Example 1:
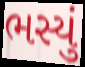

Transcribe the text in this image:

ભસ્યું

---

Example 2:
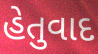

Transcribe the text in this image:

હેતુવાદ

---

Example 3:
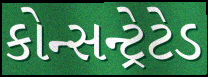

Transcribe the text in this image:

કોન્સન્ટ્રેટેડ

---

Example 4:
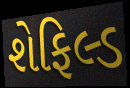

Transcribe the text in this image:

શેફિલ્ડ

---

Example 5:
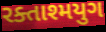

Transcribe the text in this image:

રક્તાશ્મયુગ